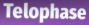
Telophase